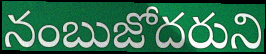
నంబుజోదరుని